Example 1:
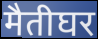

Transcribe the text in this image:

मैतीघर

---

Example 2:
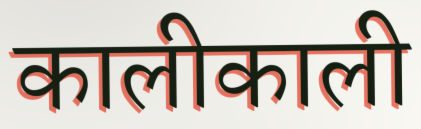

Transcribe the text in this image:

कालीकाली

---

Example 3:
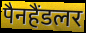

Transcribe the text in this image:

पैनहैंडलर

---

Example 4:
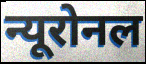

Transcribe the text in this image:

न्यूरोनल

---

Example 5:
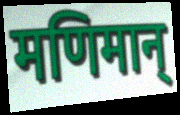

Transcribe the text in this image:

मणिमान्